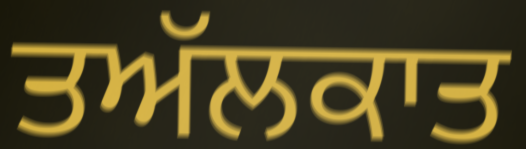
ਤਅੱਲਕਾਤ